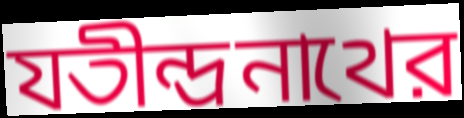
যতীন্দ্রনাথের